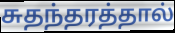
சுதந்தரத்தால்